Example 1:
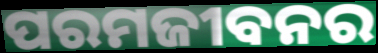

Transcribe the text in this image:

ପରମଜୀବନର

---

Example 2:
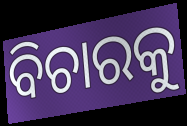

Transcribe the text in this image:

ବିଚାରକୁ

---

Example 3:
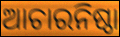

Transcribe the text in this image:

ଆଚାରନିଷ୍ଠା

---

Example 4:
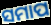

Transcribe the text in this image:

ସମାପ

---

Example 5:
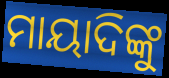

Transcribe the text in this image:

ମାୟାଦିଙ୍କୁ